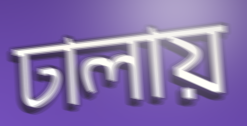
ঢালায়